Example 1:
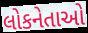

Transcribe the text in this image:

લોકનેતાઓ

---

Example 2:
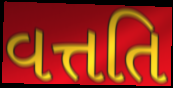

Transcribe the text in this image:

વત્તતિ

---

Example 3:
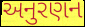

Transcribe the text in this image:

અનુરણન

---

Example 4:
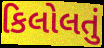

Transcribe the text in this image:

કિલોલતું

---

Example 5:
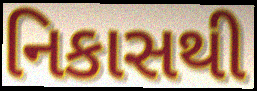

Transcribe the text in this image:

નિકાસથી